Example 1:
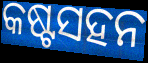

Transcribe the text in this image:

କଷ୍ଟସହନ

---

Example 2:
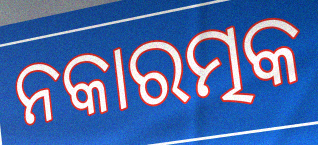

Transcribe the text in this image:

ନକାରତ୍ମକ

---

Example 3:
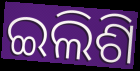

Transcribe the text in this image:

ଇଲିଶି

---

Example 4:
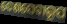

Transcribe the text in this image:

ଦେଶସେବାରୂପ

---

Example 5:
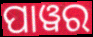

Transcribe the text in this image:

ପାୱର